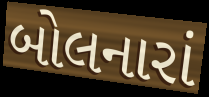
બોલનારાં